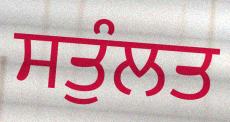
ਸਤੁੰਲਤ